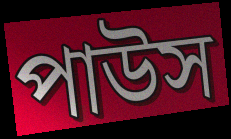
পাউস